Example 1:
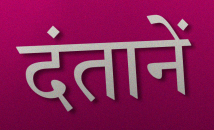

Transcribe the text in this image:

दंतानें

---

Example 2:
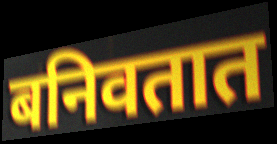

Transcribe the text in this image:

बनिवतात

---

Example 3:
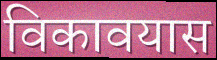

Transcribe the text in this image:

विकावयास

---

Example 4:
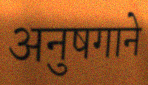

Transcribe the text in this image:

अनुषगाने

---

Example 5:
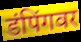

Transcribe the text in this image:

डंपिंगवर